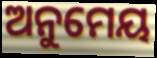
ଅନୁମେୟ